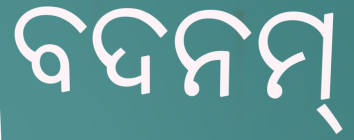
ବଦନମ୍